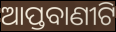
ଆପ୍ତବାଣୀଟି